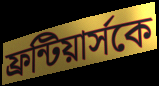
ফ্রন্টিয়ার্সকে